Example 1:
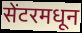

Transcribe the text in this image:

सेंटरमधून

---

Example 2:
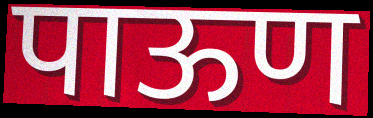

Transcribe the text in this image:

पाऊण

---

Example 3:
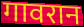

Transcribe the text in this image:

गावरान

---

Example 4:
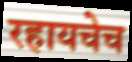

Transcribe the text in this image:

रहायचेच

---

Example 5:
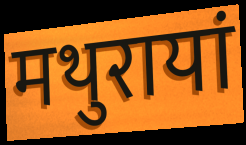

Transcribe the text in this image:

मथुरायां